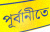
পূর্বানীতে